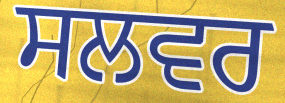
ਸਲਵਰ